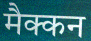
मैक्कन